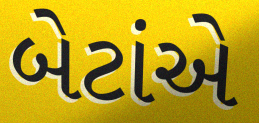
બેટાંએ